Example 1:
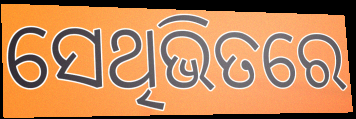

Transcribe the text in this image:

ସେଥିଭିତରେ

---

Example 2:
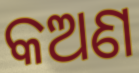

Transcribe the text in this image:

କଅଣ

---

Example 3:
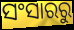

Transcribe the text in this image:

ସଂସାରରୁ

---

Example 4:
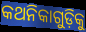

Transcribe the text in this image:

କଥନିକାଗୁଡ଼ିକୁ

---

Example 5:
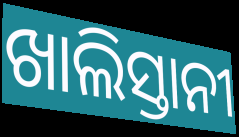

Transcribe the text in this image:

ଖାଲିସ୍ତାନୀ